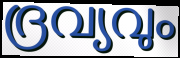
ദ്രവ്യവും